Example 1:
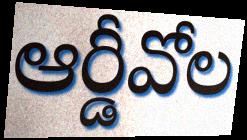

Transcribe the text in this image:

ఆర్డీవోల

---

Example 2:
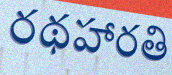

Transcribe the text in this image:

రథహారతి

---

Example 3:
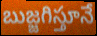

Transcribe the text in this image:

బుజ్జగిస్తూనే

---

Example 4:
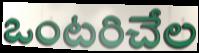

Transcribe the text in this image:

ఒంటరిచేల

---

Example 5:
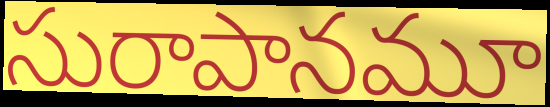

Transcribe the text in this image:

సురాపానమూ